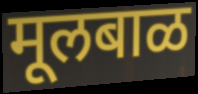
मूलबाळ